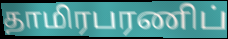
தாமிரபரணிப்